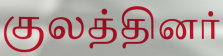
குலத்தினர்